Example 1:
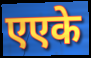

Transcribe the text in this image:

एएके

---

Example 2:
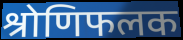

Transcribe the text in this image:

श्रोणिफलक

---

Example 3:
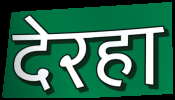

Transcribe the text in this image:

देरहा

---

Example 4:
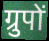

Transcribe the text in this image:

ग्रुपों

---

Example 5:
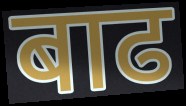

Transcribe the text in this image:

बाढ